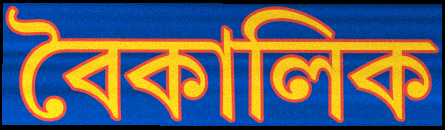
বৈকালিক